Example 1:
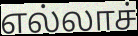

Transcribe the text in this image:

எல்லாச்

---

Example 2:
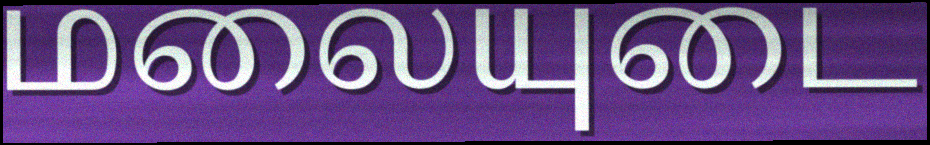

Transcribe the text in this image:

மலையுடை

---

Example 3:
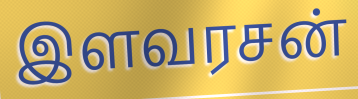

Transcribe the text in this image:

இளவரசன்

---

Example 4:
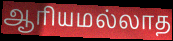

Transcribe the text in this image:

ஆரியமல்லாத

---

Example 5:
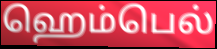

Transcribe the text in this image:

ஹெம்பெல்